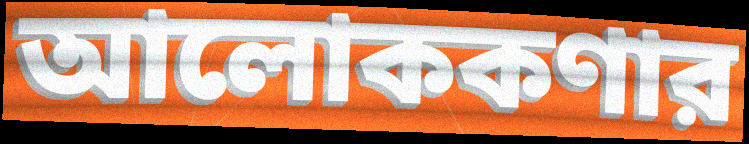
আলোককণার